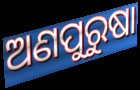
ଅଣପୁରୁଷା